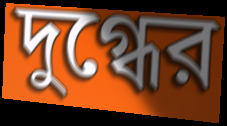
দুগ্ধের